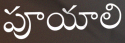
పూయాలి